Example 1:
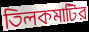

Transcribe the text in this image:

তিলকমাটির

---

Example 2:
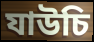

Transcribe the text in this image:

যাউচি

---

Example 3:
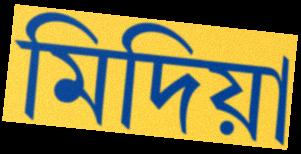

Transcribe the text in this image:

মিদিয়া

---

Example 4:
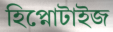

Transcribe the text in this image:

হিপ্নোটাইজ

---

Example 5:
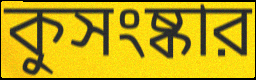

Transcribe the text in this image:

কুসংষ্কার